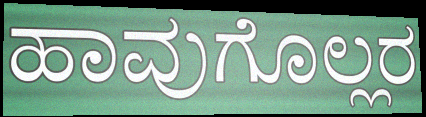
ಹಾವುಗೊಲ್ಲರ